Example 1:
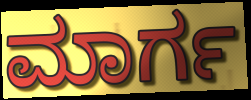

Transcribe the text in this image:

ಮಾರ್ಗ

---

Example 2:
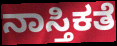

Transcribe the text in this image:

ನಾಸ್ತಿಕತೆ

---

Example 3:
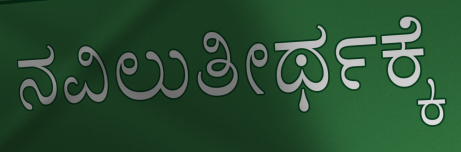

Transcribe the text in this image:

ನವಿಲುತೀರ್ಥಕ್ಕೆ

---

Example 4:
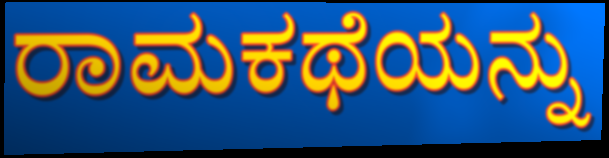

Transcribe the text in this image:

ರಾಮಕಥೆಯನ್ನು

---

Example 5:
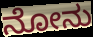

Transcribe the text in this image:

ನೋನು